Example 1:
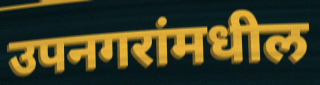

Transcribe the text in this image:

उपनगरांमधील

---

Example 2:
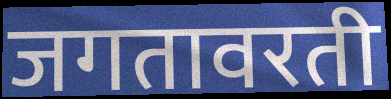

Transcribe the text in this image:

जगतावरती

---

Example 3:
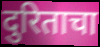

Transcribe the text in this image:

दुरिताचा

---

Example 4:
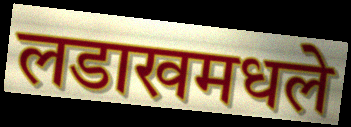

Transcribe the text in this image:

लडाखमधले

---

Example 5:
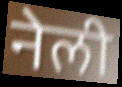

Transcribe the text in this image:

नेली